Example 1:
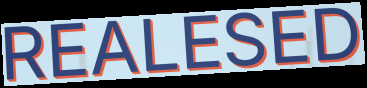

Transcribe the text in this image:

REALESED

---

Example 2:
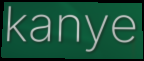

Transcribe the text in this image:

kanye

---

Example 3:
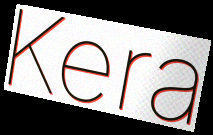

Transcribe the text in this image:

Kera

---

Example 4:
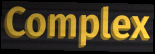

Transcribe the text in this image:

Complex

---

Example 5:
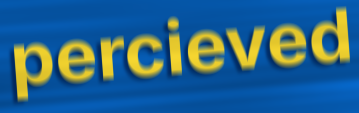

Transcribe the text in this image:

percieved